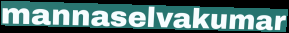
mannaselvakumar